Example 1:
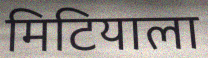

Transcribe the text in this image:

मिटियाला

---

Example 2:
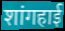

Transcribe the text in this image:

शांगहाई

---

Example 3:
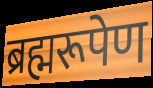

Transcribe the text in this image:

ब्रह्मरूपेण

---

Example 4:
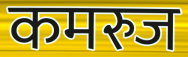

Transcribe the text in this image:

कमरुज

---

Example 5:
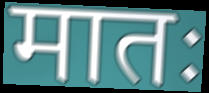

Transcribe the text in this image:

मातः